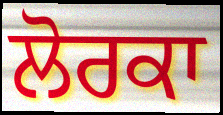
ਲੋਰਕਾ